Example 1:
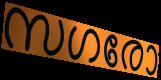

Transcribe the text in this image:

സഗരോ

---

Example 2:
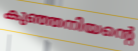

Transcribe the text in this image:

കുഞ്ഞനിയന്റെ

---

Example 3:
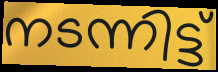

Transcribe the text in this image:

നടന്നിട്ട്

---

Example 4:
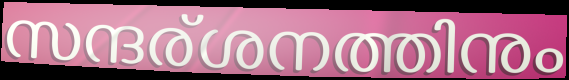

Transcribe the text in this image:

സന്ദര്ശനത്തിനും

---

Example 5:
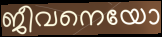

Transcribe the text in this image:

ജീവനെയോ